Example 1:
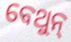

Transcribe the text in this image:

ବେଥୁନ୍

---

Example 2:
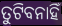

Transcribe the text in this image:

ତୁଟିବନାହିଁ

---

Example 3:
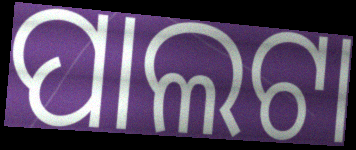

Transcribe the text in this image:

ପାଲଟା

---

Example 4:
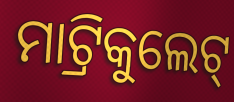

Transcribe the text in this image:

ମାଟ୍ରିକୁଲେଟ୍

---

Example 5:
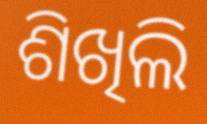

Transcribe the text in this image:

ଶିଖିଲି